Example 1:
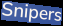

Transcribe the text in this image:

Snipers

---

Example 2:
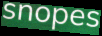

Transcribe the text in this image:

snopes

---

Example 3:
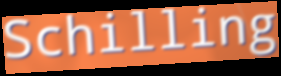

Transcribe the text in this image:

Schilling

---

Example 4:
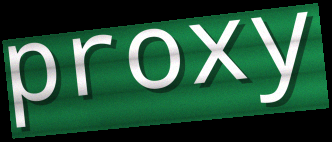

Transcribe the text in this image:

proxy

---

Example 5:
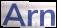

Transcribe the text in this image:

Arn